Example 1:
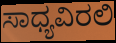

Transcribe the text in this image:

ಸಾಧ್ಯವಿರಲಿ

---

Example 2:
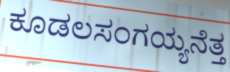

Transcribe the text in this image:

ಕೂಡಲಸಂಗಯ್ಯನೆತ್ತ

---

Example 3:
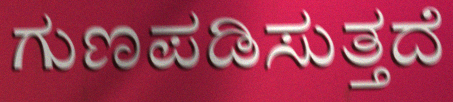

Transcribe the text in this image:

ಗುಣಪಡಿಸುತ್ತದೆ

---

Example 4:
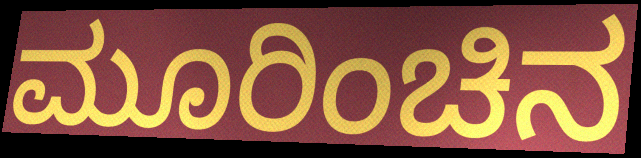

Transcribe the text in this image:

ಮೂರಿಂಚಿನ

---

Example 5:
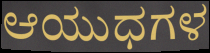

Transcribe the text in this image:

ಆಯುಧಗಳ